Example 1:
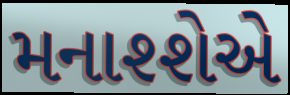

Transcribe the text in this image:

મનાશ્શેએ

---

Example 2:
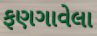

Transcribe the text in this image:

ફણગાવેલા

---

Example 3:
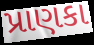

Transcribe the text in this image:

પ્રાણકા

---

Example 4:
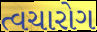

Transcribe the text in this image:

ત્વચારોગ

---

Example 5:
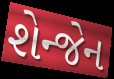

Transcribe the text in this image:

શેન્જેન